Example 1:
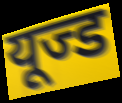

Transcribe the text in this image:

यूज्ड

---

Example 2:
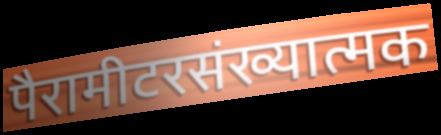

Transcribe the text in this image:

पैरामीटरसंख्यात्मक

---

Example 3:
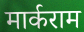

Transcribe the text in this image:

मार्कराम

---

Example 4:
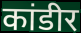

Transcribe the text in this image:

कांडीर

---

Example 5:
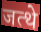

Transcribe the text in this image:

जत्थे